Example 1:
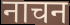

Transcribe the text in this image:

नाचन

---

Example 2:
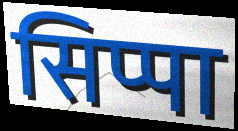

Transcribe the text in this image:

सिप्पा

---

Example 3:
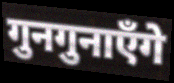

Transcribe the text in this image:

गुनगुनाएँगे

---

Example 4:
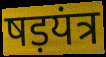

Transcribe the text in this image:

षड़यंत्र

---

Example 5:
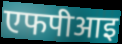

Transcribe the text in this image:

एफपीआइ